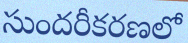
సుందరీకరణలో